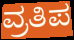
ವ್ರತಿಪ